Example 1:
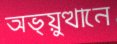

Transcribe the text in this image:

অভ্য়ুত্থানে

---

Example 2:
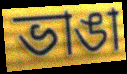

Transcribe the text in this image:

ভাঙা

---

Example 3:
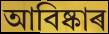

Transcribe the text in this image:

আবিষ্কাৰ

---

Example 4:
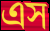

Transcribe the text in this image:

এস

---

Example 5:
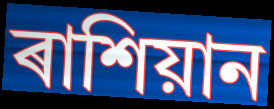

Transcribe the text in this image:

ৰাশিয়ান